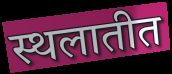
स्थलातीत